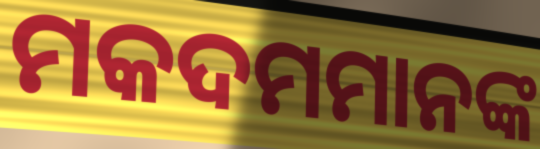
ମକଦମମାନଙ୍କ